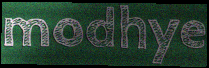
modhye